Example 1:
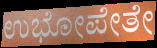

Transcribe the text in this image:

ಉಭೋಪೇತೇ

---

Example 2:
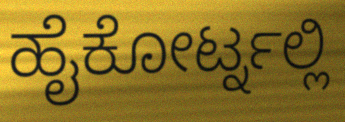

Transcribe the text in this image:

ಹೈಕೋರ್ಟ್ನಲ್ಲಿ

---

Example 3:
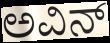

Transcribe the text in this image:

ಅವಿನ್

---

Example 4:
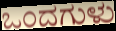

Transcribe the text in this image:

ಒಂದಗುಳು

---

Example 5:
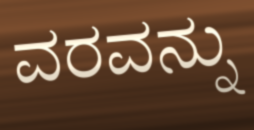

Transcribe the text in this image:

ವರವನ್ನು